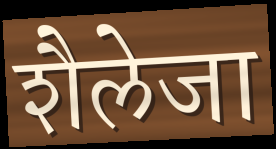
शैलेजा